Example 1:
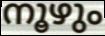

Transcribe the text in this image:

നൂഴും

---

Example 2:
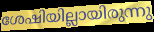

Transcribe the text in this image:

ശേഷിയില്ലായിരുന്നു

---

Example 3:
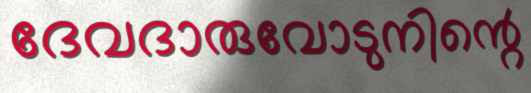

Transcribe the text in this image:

ദേവദാരുവോടുനിന്റെ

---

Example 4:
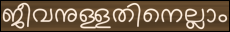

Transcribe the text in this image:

ജീവനുള്ളതിനെല്ലാം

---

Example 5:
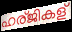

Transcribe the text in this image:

ഹര്ജികള്